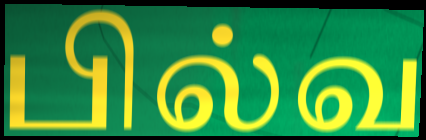
பில்வ